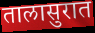
तालासुरात